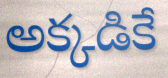
అక్కడికే